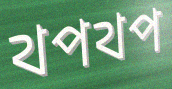
থপথপ